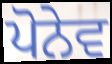
ਪੋਨੇਵ